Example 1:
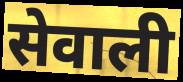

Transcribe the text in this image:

सेवाली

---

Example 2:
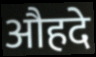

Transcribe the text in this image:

औहदे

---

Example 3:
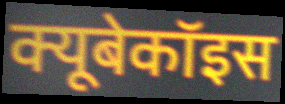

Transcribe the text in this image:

क्यूबेकॉइस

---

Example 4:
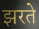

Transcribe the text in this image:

झरते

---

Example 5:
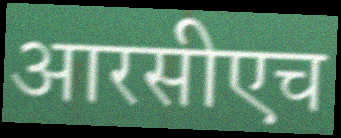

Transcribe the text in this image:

आरसीएच